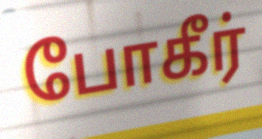
போகீர்